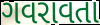
ગવરાવતા